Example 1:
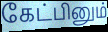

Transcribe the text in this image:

கேட்பினும்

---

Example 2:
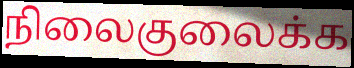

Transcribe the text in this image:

நிலைகுலைக்க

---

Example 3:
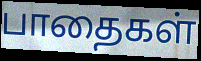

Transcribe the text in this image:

பாதைகள்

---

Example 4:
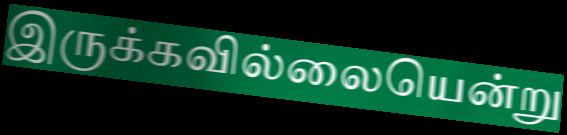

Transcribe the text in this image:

இருக்கவில்லையென்று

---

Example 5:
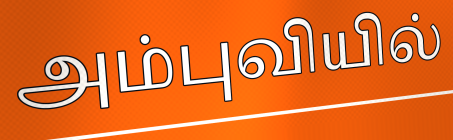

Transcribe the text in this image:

அம்புவியில்